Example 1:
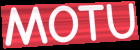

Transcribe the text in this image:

MOTU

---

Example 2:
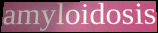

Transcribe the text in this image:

amyloidosis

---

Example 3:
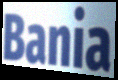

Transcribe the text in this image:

Bania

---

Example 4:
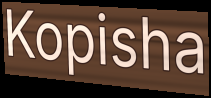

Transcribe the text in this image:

Kopisha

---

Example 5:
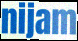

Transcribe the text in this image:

nijam